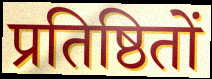
प्रतिष्ठितों